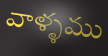
వాళ్ళము